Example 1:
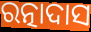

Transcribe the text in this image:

ରତ୍ନାଦାସ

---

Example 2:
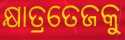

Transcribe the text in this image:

କ୍ଷାତ୍ରତେଜକୁ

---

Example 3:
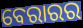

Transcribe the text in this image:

ବେରାରର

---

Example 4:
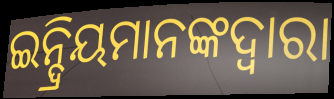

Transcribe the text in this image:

ଇନ୍ଦ୍ରିୟମାନଙ୍କଦ୍ୱାରା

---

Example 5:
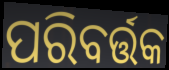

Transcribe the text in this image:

ପରିବର୍ତ୍ତକ